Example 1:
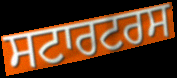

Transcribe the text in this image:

ਸਟਾਰਟਰਸ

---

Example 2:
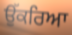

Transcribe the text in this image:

ਉੱਕਰਿਆ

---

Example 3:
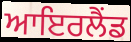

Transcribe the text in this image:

ਆਇਰਲੈੰਡ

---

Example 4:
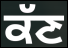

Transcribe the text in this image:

ਕੱਣ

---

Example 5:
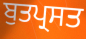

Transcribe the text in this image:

ਬੁਤਪ੍ਰਸਤ